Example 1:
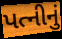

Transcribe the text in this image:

પત્નીનું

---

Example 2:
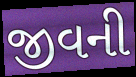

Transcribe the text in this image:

જીવની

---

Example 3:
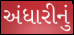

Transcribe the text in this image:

અંધારીનું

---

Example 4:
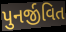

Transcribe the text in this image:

પુનર્જીવિત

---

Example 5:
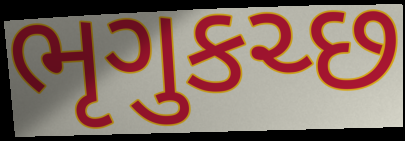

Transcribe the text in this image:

ભૃગુકચ્છ